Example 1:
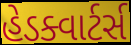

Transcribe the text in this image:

હેડક્વાર્ટર્સ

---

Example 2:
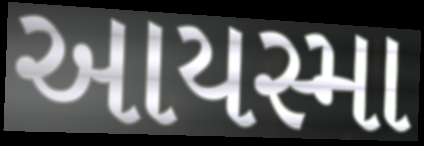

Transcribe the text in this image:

આયસ્મા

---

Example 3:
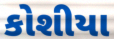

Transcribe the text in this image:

કોશીયા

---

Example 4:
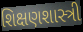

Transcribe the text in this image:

શિક્ષણશાસ્ત્રી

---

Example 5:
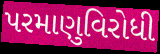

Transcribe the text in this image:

પરમાણુવિરોધી